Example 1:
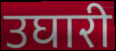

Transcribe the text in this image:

उघारी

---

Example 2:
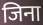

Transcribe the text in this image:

जिना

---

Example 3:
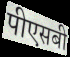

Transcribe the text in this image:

पीएसबी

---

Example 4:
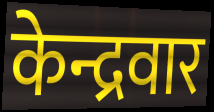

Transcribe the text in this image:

केन्‍द्रवार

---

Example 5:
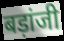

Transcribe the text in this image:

बड़ांजी